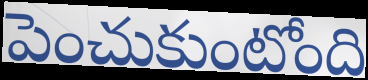
పెంచుకుంటోంది